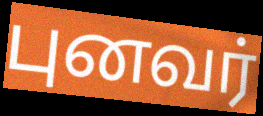
புனவர்